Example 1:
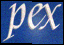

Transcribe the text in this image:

pex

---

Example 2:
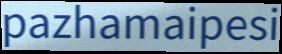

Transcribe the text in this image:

pazhamaipesi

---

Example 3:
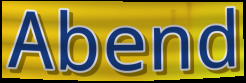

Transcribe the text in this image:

Abend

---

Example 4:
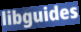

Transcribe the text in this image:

libguides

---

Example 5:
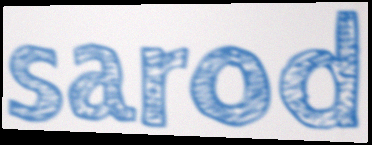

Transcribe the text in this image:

sarod